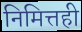
निमित्तही